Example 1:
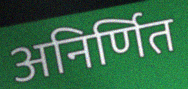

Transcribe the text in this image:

अनिर्णित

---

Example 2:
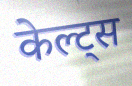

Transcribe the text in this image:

केल्ट्स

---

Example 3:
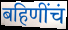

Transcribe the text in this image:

बहिणींचं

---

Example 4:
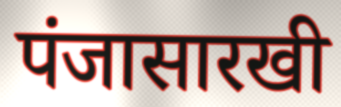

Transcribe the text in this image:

पंजासारखी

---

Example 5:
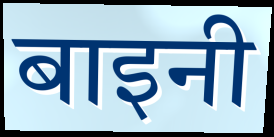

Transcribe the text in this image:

बाइनी